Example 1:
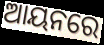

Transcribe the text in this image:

ଆୟନରେ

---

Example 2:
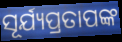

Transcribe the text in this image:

ସୂର୍ଯ୍ୟପ୍ରତାପଙ୍କ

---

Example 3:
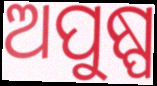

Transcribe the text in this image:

ଅପୁଷ୍ପ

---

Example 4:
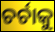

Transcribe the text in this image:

ଚର୍ଚାକୁ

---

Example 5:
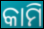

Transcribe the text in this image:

କାମି